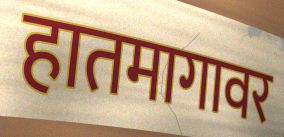
हातमागावर